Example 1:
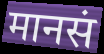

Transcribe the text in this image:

मानसं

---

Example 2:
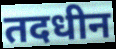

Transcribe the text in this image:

तदधीन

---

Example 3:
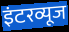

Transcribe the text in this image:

इंटरव्यूज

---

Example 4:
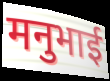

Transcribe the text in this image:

मनुभाई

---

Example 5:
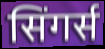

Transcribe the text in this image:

सिंगर्स